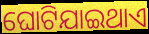
ଘୋଟିଯାଇଥାଏ